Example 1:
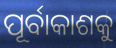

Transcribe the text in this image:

ପୂର୍ବାକାଶକୁ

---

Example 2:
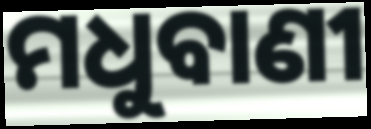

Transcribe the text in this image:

ମଧୁବାଣୀ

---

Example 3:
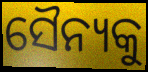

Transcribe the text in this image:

ସୈନ୍ୟକୁ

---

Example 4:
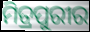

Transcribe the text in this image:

ମିତ୍ରପୁରୀର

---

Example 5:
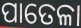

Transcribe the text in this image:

ପାତେଳା